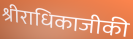
श्रीराधिकाजीकी